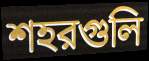
শহরগুলি